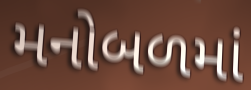
મનોબળમાં